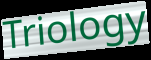
Triology